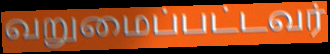
வறுமைப்பட்டவர்